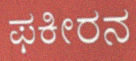
ಫಕೀರನ